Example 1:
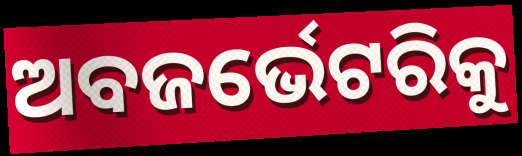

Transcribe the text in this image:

ଅବଜର୍ଭେଟରିକୁ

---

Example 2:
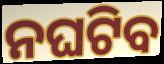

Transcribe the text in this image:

ନଘଟିବ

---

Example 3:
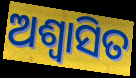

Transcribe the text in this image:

ଅଶ୍ୱାସିତ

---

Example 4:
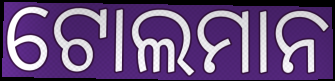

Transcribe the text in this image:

ଟୋଲମାନ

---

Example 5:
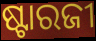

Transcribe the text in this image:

ଷ୍ଟାରଜୀ